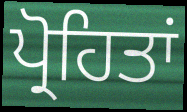
ਪ੍ਰੋਹਿਤਾਂ